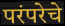
परंपरेचे